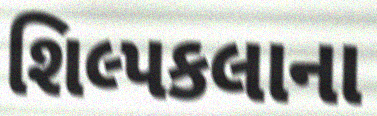
શિલ્પકલાના